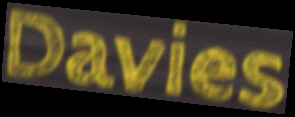
Davies